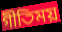
গীতিময়